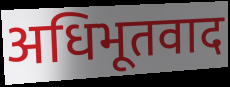
अधिभूतवाद